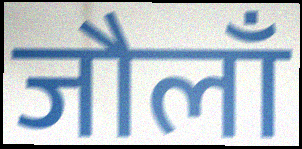
जौलाँ